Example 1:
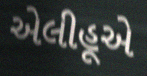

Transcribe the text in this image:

એલીહૂએ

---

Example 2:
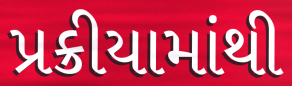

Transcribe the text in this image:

પ્રક્રીયામાંથી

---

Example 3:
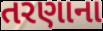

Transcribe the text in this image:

તરણાના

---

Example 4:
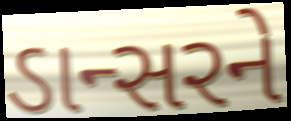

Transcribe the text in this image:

ડાન્સરને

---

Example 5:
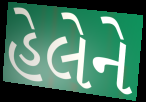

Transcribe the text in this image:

હેલેને